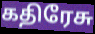
கதிரேசு